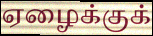
ஏழைக்குக்